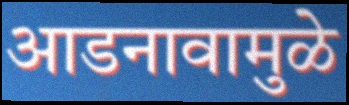
आडनावामुळे